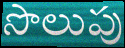
సొలుపు